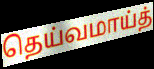
தெய்வமாய்த்